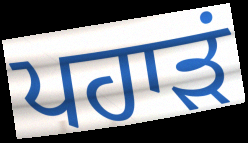
ਪਹਾੜਂ